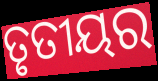
ତୃତୀୟର